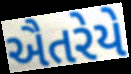
ઐતરેયે